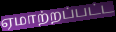
ஏமாற்றப்பட்ட